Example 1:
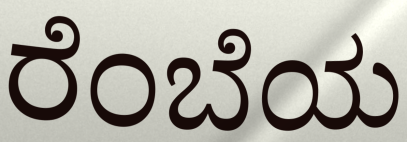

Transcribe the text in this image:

ರೆಂಬೆಯ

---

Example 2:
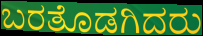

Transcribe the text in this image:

ಬರತೊಡಗಿದರು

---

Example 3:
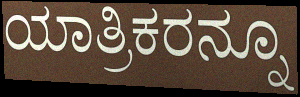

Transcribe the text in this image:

ಯಾತ್ರಿಕರನ್ನೂ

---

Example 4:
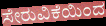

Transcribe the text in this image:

ಸೇರುವಿಕೆಯಿಂದ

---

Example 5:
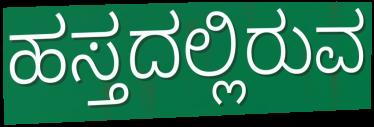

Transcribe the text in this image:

ಹಸ್ತದಲ್ಲಿರುವ